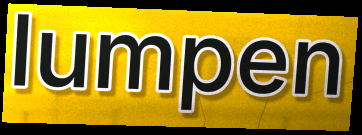
lumpen